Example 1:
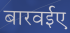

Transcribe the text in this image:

बारवईए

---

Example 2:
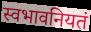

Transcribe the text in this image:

स्वभावनियतं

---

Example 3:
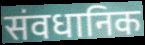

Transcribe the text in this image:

संवधानिक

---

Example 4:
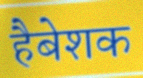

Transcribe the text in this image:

हैबेशक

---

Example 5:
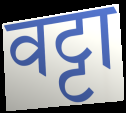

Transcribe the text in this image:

वट्टा